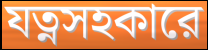
যত্নসহকারে